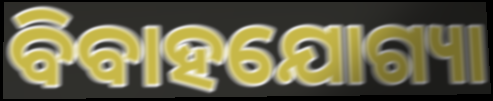
ବିବାହଯୋଗ୍ୟା